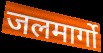
जलमार्गो